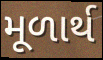
મૂળાર્થ